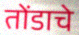
तोंडाचे